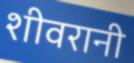
शीवरानी